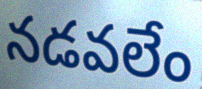
నడవలేం